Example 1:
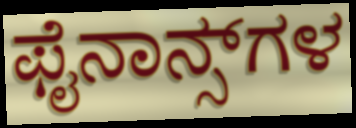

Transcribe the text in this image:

ಫೈನಾನ್ಸ್‌ಗಳ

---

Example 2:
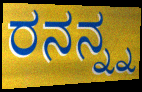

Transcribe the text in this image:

ರನನ್ನ್ನ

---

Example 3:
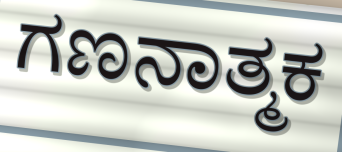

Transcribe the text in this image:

ಗಣನಾತ್ಮಕ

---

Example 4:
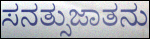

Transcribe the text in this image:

ಸನತ್ಸುಜಾತನು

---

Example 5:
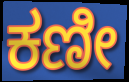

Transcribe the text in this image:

ಕಣೀ